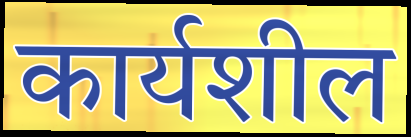
कार्यशील